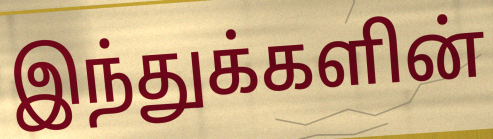
இந்துக்களின்